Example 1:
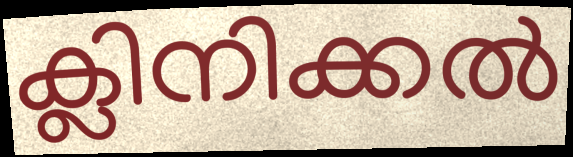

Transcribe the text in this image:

ക്ലിനിക്കൽ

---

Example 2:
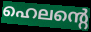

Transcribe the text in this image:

ഹെലന്റെ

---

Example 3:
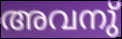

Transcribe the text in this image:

അവനു്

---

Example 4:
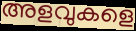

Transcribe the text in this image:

അളവുകളെ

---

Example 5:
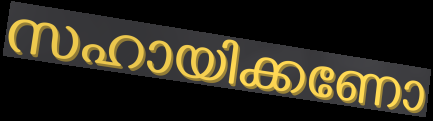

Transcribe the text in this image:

സഹായിക്കണോ